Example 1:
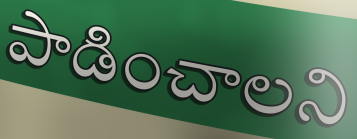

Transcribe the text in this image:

పాడించాలని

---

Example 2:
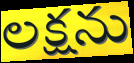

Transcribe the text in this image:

లక్షను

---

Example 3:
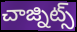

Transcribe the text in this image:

చాజ్నిట్స్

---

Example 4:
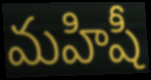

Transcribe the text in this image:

మహిషీ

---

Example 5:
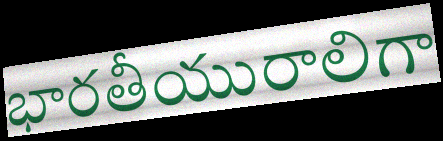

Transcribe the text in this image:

భారతీయురాలిగా